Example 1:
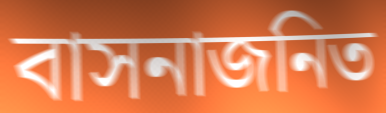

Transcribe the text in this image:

বাসনাজনিত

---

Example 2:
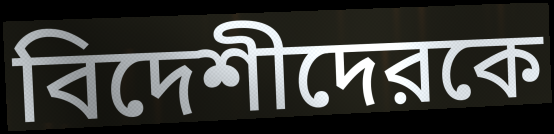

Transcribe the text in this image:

বিদেশীদেরকে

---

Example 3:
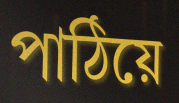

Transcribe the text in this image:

পাঠিয়ে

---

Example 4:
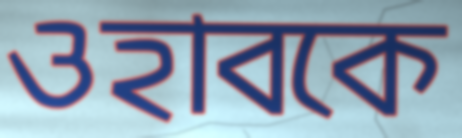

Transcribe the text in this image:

ওহাবকে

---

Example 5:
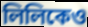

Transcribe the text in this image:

লিলিকেও